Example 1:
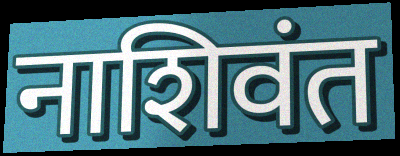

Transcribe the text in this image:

नाशिवंत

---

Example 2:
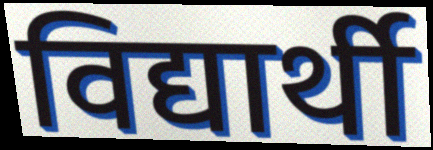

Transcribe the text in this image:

विद्यार्थी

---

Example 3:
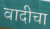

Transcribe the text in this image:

वादीचा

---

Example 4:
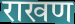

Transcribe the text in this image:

राखण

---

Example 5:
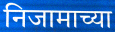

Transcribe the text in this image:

निजामाच्या